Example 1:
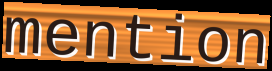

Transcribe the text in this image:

mention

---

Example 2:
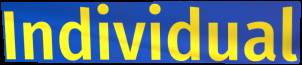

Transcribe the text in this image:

Individual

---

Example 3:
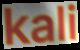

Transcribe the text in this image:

kali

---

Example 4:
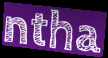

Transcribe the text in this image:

ntha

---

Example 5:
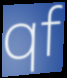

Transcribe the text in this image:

qf